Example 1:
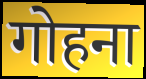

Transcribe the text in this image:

गोहना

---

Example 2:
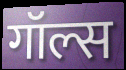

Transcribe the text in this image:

गॉल्स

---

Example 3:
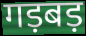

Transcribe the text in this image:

गड़बड़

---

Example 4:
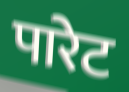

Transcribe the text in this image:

पारेट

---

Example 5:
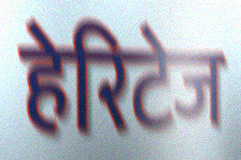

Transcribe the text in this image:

हेरिटेज